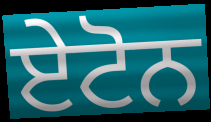
ਏਟੋਨ